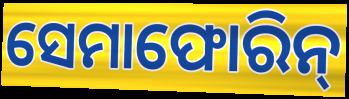
ସେମାଫୋରିନ୍